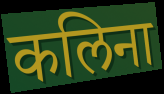
कलिना